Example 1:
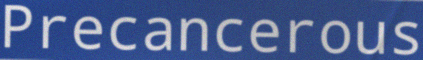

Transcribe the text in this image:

Precancerous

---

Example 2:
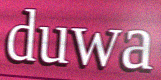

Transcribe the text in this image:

duwa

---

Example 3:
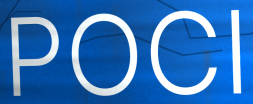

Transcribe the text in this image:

POCl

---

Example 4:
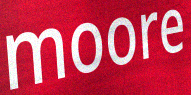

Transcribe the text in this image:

moore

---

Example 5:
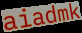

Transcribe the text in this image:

aiadmk